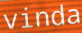
vinda